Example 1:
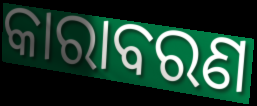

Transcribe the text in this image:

କାରାବରଣ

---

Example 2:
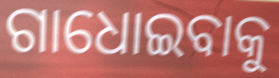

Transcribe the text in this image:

ଗାଧୋଇବାକୁ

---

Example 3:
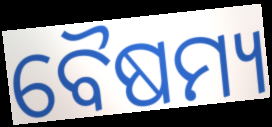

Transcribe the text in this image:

ବୈଷମ୍ୟ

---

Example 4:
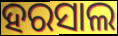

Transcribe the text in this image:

ହରସାଲ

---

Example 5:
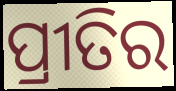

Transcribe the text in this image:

ପ୍ରୀତିର